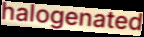
halogenated